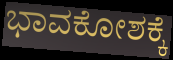
ಭಾವಕೋಶಕ್ಕೆ